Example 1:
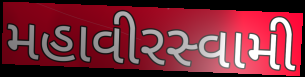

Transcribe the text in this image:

મહાવીરસ્વામી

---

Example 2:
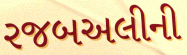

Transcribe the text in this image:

રજબઅલીની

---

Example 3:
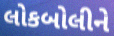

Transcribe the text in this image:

લોકબોલીને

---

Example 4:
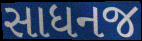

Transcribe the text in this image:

સાધનજ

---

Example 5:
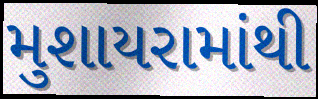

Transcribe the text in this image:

મુશાયરામાંથી